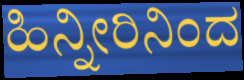
ಹಿನ್ನೀರಿನಿಂದ